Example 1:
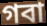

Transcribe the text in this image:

গবা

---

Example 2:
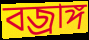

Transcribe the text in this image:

বজ্রাঙ্গ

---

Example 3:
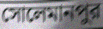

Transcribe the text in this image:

সোলেমানপুর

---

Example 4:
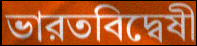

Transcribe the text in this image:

ভারতবিদ্বেষী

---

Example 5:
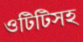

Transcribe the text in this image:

ওটিটিসহ